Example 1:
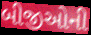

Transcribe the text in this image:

બીજીઓની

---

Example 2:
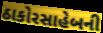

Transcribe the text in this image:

ઠાકોરસાહેબની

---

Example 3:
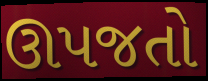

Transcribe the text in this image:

ઊપજતો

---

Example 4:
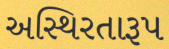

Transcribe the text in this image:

અસ્થિરતારૂપ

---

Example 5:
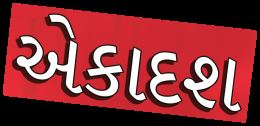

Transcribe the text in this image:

એકાદશ